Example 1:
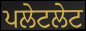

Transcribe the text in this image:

ਪਲੇਟਲੇਟ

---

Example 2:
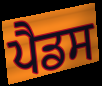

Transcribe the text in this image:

ਪੈਡਸ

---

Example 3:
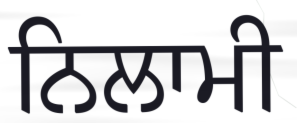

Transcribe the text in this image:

ਨਿਲਾਮੀ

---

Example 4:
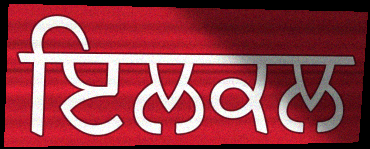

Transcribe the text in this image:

ਇਲਕਲ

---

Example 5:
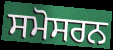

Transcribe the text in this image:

ਸਮੋਸਰਨ